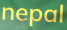
nepal